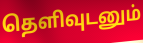
தெளிவுடனும்